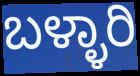
ಬಳ್ಳಾರಿ